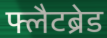
फ्लैटब्रेड